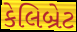
કેલિબ્રેટ